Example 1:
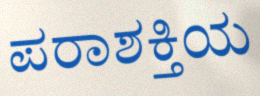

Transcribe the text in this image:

ಪರಾಶಕ್ತಿಯ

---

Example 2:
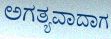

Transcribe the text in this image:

ಅಗತ್ಯವಾದಾಗ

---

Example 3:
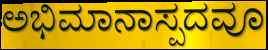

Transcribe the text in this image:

ಅಭಿಮಾನಾಸ್ಪದವೂ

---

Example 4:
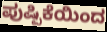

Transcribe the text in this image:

ಪುಷ್ಪಿಕೆಯಿಂದ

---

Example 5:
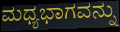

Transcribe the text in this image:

ಮಧ್ಯಭಾಗವನ್ನು